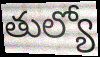
తుల్యో